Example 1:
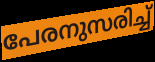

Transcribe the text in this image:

പേരനുസരിച്ച്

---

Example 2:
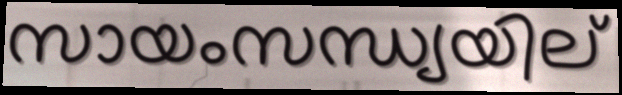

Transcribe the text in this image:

സായംസന്ധ്യയില്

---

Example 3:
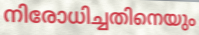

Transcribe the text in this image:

നിരോധിച്ചതിനെയും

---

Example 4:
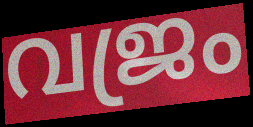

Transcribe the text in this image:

വജ്രം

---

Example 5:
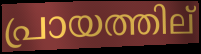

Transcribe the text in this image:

പ്രായത്തില്